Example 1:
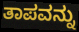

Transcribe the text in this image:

ತಾಪವನ್ನು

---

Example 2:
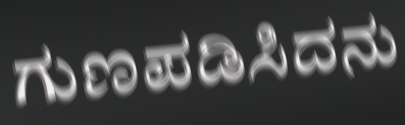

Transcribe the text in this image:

ಗುಣಪಡಿಸಿದನು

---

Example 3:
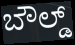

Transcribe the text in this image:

ಬೌಲ್ಡ್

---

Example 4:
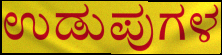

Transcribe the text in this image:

ಉಡುಪುಗಳ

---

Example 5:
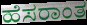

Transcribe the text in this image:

ಹೆಸರಾಂತ